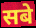
सबे